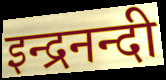
इन्द्रनन्दी